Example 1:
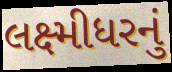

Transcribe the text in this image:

લક્ષ્મીધરનું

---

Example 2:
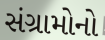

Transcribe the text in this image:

સંગ્રામોનો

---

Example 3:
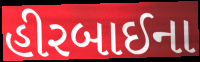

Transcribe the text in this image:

હીરબાઈના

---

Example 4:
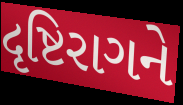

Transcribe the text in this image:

દૃષ્ટિરાગને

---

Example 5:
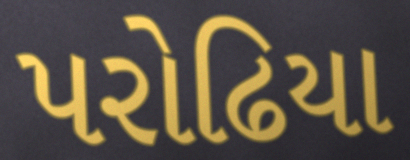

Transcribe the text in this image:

પરોઢિયા